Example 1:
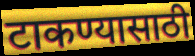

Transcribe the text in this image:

टाकण्यासाठी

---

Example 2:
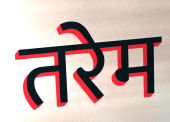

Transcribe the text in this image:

तरेम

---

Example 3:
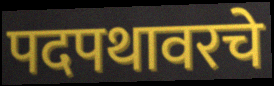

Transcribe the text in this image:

पदपथावरचे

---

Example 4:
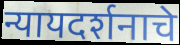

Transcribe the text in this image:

न्यायदर्शनाचे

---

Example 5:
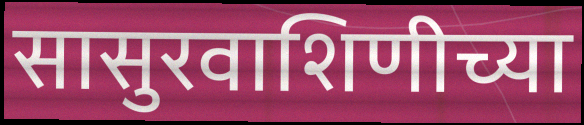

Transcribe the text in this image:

सासुरवाशिणीच्या